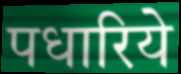
पधारिये